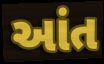
આંત